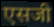
एसजी